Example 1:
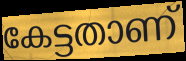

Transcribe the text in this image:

കേട്ടതാണ്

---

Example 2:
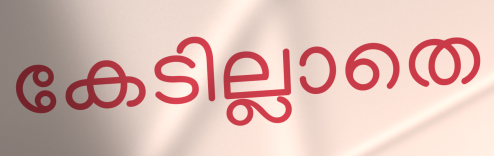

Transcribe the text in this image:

കേടില്ലാതെ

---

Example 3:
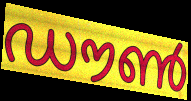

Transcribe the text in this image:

ഡൗൺ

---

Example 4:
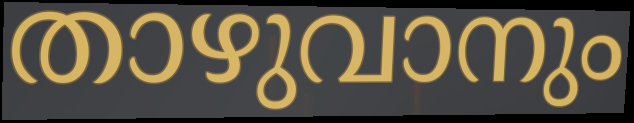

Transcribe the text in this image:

താഴുവാനും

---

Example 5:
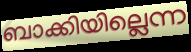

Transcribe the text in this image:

ബാക്കിയില്ലെന്ന